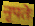
नृपतेः